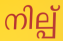
നില്പ്